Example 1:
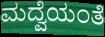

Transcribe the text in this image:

ಮದ್ವೆಯಂತೆ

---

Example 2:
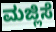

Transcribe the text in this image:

ಮಜ್ಲಿಸೆ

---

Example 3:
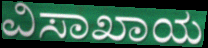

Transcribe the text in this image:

ವಿಸಾಖಾಯ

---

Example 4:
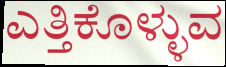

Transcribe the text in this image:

ಎತ್ತಿಕೊಳ್ಳುವ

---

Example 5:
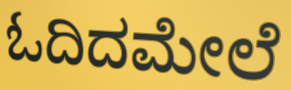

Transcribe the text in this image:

ಓದಿದಮೇಲೆ